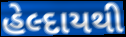
હેલ્દાયથી